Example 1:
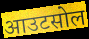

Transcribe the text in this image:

आउटसोल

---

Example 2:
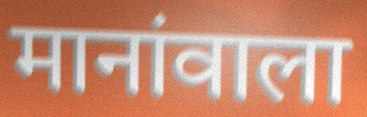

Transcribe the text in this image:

मानांवाला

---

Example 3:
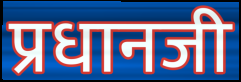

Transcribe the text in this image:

प्रधानजी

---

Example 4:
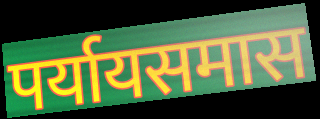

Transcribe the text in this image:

पर्यायसमास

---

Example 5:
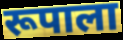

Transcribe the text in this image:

रूपाला